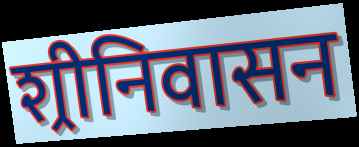
श्रीनिवासन